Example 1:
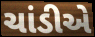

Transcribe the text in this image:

ચાંડીએ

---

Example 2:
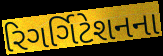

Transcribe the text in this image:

રિગર્ગિટેશનના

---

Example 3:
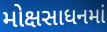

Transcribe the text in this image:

મોક્ષસાધનમાં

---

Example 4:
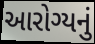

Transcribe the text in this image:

આરોગ્યનું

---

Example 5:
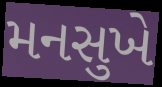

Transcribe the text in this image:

મનસુખે